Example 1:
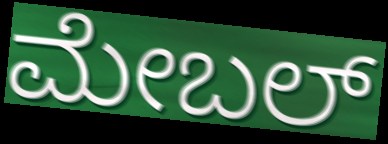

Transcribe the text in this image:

ಮೇಬಲ್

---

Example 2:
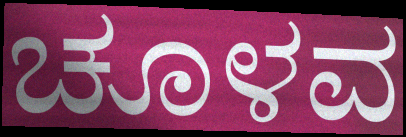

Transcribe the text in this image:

ಚೂಳವ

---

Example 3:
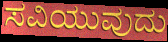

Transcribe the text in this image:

ಸವಿಯುವುದು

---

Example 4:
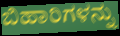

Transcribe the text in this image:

ಬಿಹಾರಿಗಳನ್ನು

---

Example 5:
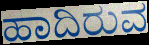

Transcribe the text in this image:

ಹಾದಿರುವ